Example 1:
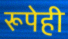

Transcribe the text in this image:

रूपेही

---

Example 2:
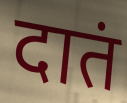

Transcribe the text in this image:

दातं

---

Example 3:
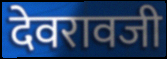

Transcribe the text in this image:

देवरावजी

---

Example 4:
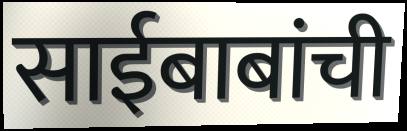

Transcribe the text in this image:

साईबाबांची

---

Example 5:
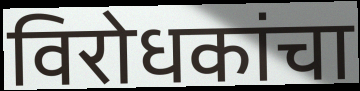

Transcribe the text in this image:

विरोधकांचा